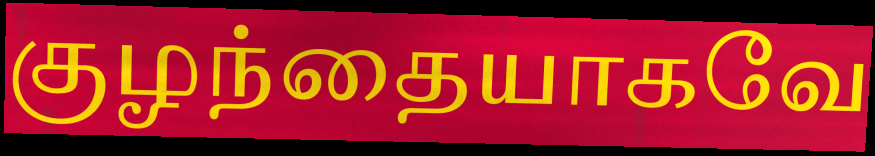
குழந்தையாகவே